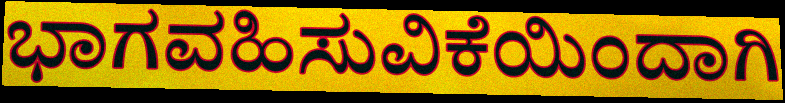
ಭಾಗವಹಿಸುವಿಕೆಯಿಂದಾಗಿ